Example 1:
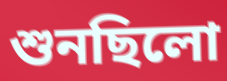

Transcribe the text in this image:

শুনছিলো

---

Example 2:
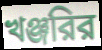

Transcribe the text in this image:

খঞ্জরির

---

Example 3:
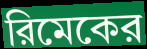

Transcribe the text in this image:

রিমেকের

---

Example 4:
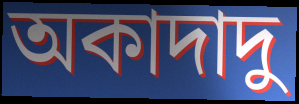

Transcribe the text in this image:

অকাদাদু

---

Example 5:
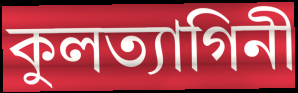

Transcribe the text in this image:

কুলত্যাগিনী